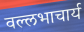
वल्लभाचार्य